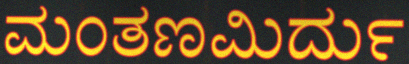
ಮಂತಣಮಿರ್ದು